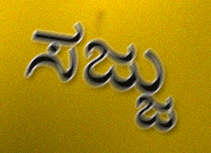
ಸಜ್ಜು